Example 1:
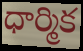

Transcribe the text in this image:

ధార్మిక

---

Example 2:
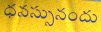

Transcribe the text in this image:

ధనస్సునందు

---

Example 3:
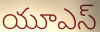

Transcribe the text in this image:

యూఎస్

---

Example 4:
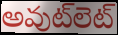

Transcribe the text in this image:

అవుట్‌లెట్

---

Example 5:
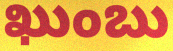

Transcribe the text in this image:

ఖుంబు